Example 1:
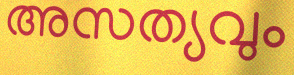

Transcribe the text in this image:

അസത്യവും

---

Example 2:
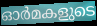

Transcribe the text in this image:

ഓർമകളുടെ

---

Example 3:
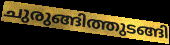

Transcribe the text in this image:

ചുരുങ്ങിത്തുടങ്ങി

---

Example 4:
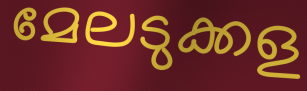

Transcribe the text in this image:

മേലടുക്കള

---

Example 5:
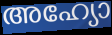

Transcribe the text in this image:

അഹ്യോ